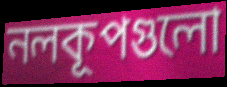
নলকূপগুলো